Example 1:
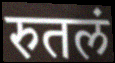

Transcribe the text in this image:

रुतलं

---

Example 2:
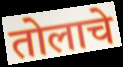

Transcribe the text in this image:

तोलाचे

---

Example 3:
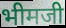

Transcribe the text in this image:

भीमजी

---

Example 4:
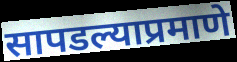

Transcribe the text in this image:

सापडल्याप्रमाणे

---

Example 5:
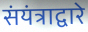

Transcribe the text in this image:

संयंत्राद्वारे